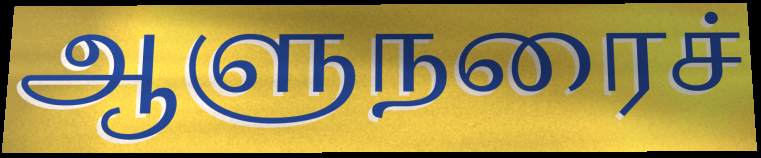
ஆளுநரைச்